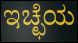
ಇಚ್ಛೆಯ